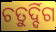
ଚତୁର୍ଦ୍ଦିଗ